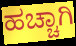
ಹಚ್ಚಾಗಿ